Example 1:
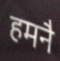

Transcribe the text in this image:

हमनै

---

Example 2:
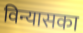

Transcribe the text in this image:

विन्यासका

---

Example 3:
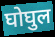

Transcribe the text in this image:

घोघुल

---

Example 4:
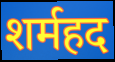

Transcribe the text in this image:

शर्महद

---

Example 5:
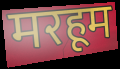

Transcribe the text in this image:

मरहूम